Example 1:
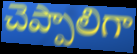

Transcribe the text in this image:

చెప్పాలిగా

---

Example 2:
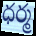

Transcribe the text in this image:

ధర్మ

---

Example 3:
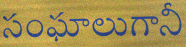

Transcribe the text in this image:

సంఘాలుగానీ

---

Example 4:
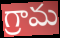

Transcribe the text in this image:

గ్రామ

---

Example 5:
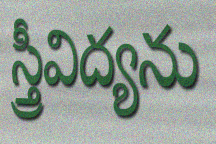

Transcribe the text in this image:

స్త్రీవిద్యను